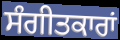
ਸੰਗੀਤਕਾਰਾਂ